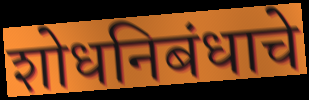
शोधनिबंधाचे